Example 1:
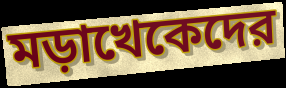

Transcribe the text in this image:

মড়াখেকেদের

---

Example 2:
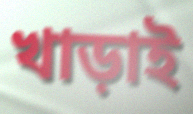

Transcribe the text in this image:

খাড়াই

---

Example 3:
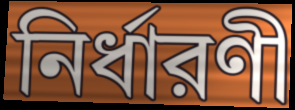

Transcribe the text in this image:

নির্ধারণী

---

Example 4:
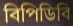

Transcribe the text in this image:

বিপিডিবি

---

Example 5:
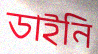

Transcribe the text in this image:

ডাইনি